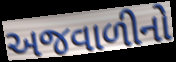
અજવાળીનો